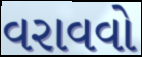
વરાવવો